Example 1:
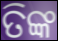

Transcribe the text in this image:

ତିଙ୍କ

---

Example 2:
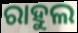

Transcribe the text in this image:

ରାହୁଲ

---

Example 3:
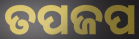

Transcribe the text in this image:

ତପଜପ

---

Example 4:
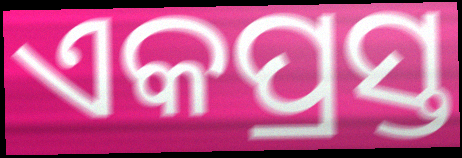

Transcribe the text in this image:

ଏକପ୍ରସ୍ତ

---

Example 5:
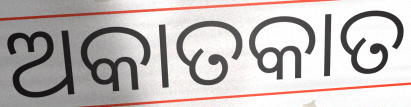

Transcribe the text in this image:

ଅକାତକାତ